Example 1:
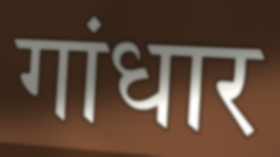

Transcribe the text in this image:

गांधार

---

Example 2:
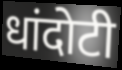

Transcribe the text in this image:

धांदोटी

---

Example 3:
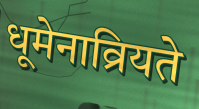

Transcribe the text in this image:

धूमेनाव्रियते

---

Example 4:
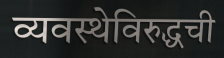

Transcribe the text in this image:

व्यवस्थेविरुद्धची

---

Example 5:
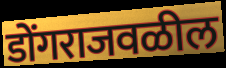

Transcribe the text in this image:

डोंगराजवळील